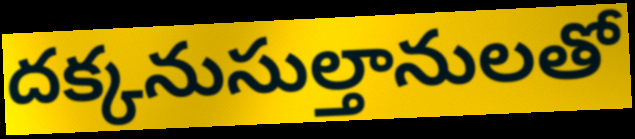
దక్కనుసుల్తానులతో